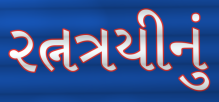
રત્નત્રયીનું